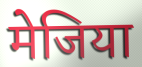
मेजिया